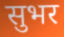
सुभर